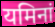
यमिनां